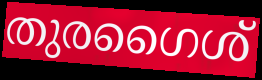
തുരഗൈശ്